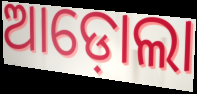
ଆଡ଼ୋଲା